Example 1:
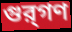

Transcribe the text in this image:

গুর্‌গণ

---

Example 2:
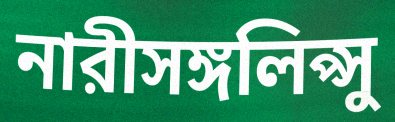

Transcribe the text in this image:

নারীসঙ্গলিপ্সু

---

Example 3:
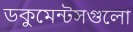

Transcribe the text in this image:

ডকুমেন্টসগুলো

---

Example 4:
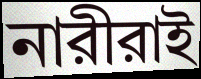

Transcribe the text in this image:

নারীরাই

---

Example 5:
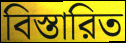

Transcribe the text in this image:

বিস্তারিত